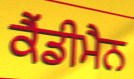
ਕੈਂਡੀਮੈਨ